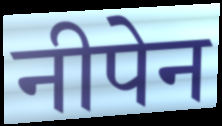
नीपेन